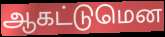
ஆகட்டுமென